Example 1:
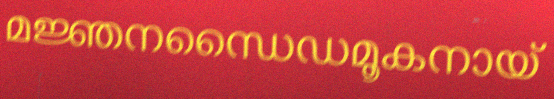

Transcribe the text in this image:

മജ്ഞനന്ധൈഡമൂകനായ്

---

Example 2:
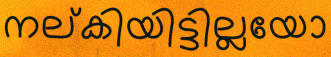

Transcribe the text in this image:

നല്കിയിട്ടില്ലയോ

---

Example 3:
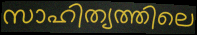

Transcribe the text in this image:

സാഹിത്യത്തിലെ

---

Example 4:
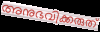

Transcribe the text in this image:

അനുഭവിക്കരുത്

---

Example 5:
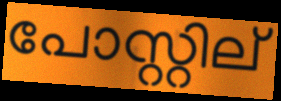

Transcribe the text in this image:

പോസ്റ്റില്